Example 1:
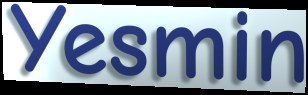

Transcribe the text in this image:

Yesmin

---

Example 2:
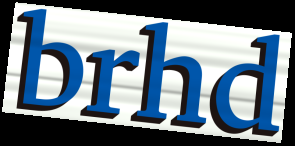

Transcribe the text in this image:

brhd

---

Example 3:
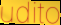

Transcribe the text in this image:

udito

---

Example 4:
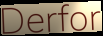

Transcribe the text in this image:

Derfor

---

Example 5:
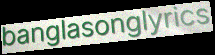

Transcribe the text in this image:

banglasonglyrics